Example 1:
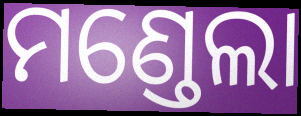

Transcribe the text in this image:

ମଣ୍ଡେଲା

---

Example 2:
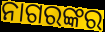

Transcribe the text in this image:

ନାଗରଙ୍କର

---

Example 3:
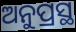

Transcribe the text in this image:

ଅନୁପ୍ରସ୍ଥ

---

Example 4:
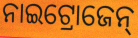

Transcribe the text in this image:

ନାଇଟ୍ରୋଜେନ୍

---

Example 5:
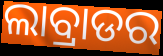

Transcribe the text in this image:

ଲାବ୍ରାଡର